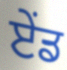
ਏੰਡ